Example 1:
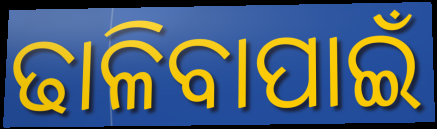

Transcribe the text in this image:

ଢାଳିବାପାଇଁ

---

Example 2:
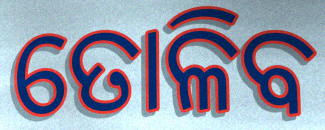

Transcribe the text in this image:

ତୋଳିବ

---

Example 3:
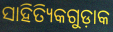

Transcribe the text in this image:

ସାହିତ୍ୟିକଗୁଡ଼ାକ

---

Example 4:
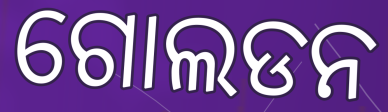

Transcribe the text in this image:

ଗୋଲଡନ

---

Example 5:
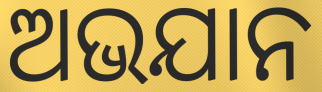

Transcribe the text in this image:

ଅଭଯାନ